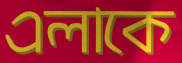
এলাকে